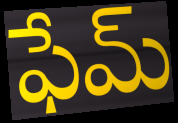
ఫేమ్